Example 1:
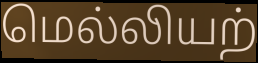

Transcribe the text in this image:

மெல்லியற்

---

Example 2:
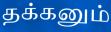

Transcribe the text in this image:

தக்கனும்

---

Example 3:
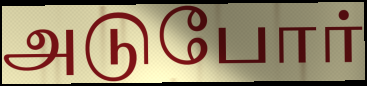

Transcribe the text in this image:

அடுபோர்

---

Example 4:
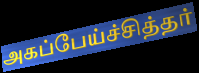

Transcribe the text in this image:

அகப்பேய்ச்சித்தர்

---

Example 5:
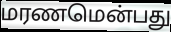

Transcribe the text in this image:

மரணமென்பது